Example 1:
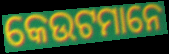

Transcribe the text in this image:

କେଉଟମାନେ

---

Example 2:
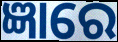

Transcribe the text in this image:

ଜ୍ଞାରେ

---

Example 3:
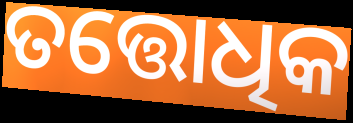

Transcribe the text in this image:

ତତ୍ତୋଧିକ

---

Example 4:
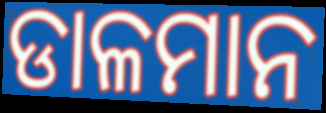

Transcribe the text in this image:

ଡାଳମାନ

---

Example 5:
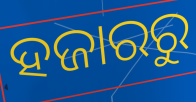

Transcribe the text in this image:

ହଜାରରୁ